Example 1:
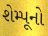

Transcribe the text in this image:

શેમ્પૂનો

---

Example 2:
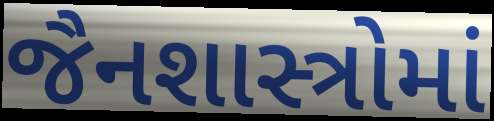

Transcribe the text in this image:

જૈનશાસ્ત્રોમાં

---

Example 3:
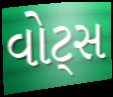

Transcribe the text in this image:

વોટ્સ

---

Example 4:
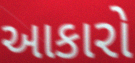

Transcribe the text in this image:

આકારો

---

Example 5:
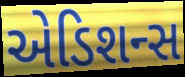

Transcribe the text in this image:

એડિશન્સ